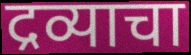
द्रव्याचा